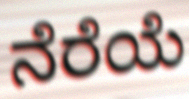
ನೆರೆಯೆ